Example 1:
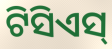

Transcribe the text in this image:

ଟିସିଏସ୍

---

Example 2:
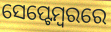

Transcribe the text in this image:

ସେପ୍ଟେମ୍ୱରରେ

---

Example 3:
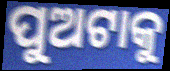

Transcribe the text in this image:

ପୁଅଟାକୁ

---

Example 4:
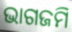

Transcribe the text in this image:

ଭାଗଜମି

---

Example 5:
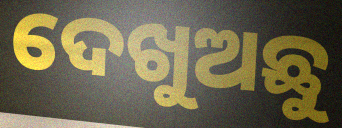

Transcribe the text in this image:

ଦେଖୁଅଛୁ